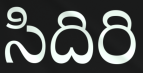
సిదిరి